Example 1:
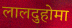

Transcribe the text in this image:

लालदुहोमा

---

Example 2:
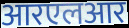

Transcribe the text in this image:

आरएलआर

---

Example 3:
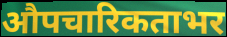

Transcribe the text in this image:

औपचारिकताभर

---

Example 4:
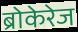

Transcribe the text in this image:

ब्रोकेरेज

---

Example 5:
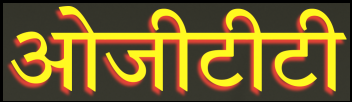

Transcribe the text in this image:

ओजीटीटी